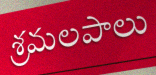
శ్రమలపాలు